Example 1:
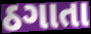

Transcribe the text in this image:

ઠગાતા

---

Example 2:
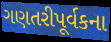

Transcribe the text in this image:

ગણતરીપૂર્વકના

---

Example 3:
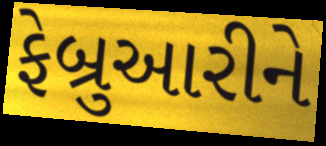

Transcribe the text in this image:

ફેબ્રુઆરીને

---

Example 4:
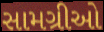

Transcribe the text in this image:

સામગ્રીઓ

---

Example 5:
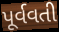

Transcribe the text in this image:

પૂર્વવતી